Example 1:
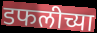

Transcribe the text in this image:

डफलीच्या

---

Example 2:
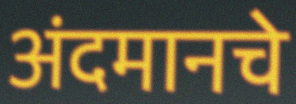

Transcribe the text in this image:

अंदमानचे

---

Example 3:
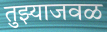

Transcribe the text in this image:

तुझ्याजवळ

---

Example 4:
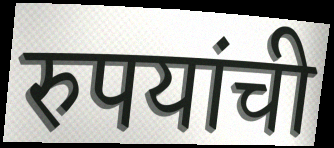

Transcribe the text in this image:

रुपयांची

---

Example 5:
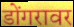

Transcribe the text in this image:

डोंगरावर